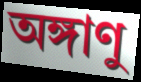
অঙ্গাণু